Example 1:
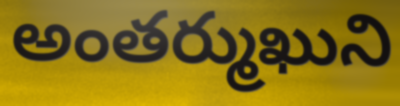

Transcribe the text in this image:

అంతర్ముఖుని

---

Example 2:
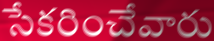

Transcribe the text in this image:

సేకరించేవారు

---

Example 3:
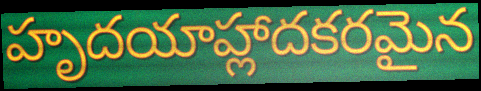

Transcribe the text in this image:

హృదయాహ్లాదకరమైన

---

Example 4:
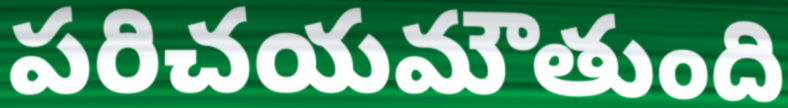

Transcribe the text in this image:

పరిచయమౌతుంది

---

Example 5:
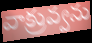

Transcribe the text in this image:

వాక్రువ్వను